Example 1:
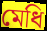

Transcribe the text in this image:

মেধি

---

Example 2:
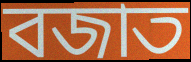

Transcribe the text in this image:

বজাত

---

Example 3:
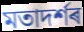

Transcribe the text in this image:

মতাদৰ্শৰ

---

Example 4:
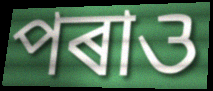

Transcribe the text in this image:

পৰাও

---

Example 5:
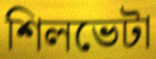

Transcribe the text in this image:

শিলভেটা